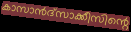
കാസാൻദ്സാക്കീസിന്റെ